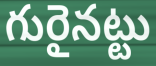
గురైనట్టు